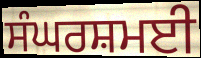
ਸੰਘਰਸ਼ਮਈ